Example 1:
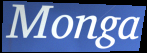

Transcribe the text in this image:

Monga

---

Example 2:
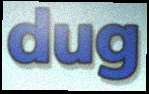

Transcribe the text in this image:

dug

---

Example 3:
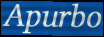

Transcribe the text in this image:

Apurbo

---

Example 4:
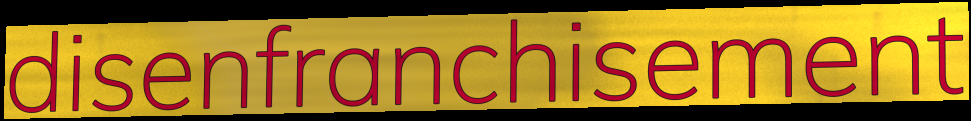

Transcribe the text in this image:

disenfranchisement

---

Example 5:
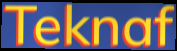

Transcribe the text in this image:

Teknaf